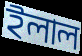
ইলাল